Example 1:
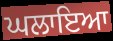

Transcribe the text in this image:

ਘਲਾਇਆ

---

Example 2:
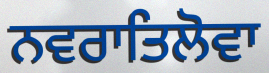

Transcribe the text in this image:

ਨਵਰਾਤਿਲੋਵਾ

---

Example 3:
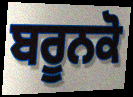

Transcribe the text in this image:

ਬਰੂਨਕੋ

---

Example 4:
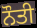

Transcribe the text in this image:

ਨੌਤੀ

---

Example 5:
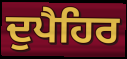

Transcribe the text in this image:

ਦੁਪੈਹਿਰ